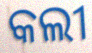
କଲୀ